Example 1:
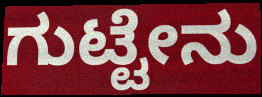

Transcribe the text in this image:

ಗುಟ್ಟೇನು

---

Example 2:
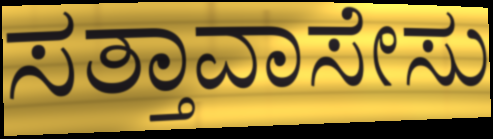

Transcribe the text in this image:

ಸತ್ತಾವಾಸೇಸು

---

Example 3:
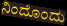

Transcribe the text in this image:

ನಿಂದೊಂದು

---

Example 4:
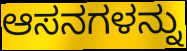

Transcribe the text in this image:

ಆಸನಗಳನ್ನು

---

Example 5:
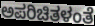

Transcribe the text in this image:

ಅಪರಿಚಿತಳಂತೆ